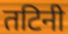
तटिनी